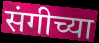
संगीच्या